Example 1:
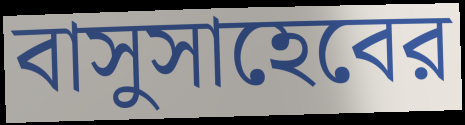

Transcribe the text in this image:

বাসুসাহেবের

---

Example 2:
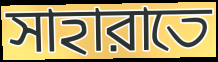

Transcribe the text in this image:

সাহারাতে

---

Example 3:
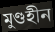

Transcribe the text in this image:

মুণ্ডহীন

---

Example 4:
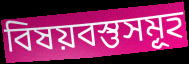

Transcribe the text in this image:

বিষয়বস্তুসমূহ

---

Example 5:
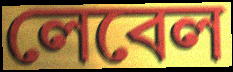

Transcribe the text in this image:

লেবেল